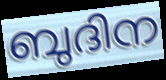
ബുദിന